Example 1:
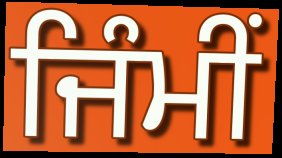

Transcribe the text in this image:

ਜਿੰਮੀਂ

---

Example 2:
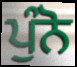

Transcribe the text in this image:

ਪੁੰਨੋ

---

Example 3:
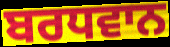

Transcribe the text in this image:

ਬਰਧਵਾਨ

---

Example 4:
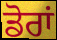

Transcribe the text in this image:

ਡੋਰਾਂ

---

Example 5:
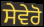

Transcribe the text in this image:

ਸੇਵੇਰੋ